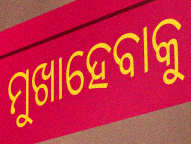
ମୁଖାହେବାକୁ